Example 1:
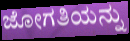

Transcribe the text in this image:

ಜೋಗತಿಯನ್ನು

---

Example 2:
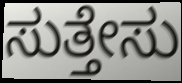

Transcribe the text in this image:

ಸುತ್ತೇಸು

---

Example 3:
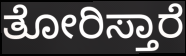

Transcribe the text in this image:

ತೋರಿಸ್ತಾರೆ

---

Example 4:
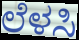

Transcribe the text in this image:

ಲೆಳಸಿ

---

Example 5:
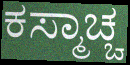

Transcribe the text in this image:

ಕಸ್ಮಾಚ್ಚ